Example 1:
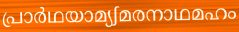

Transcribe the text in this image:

പ്രാർഥയാമ്യഽമരനാഥമഹം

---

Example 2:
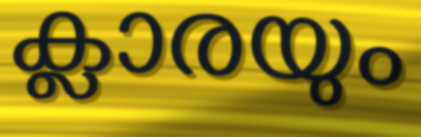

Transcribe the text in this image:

ക്ലാരയും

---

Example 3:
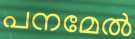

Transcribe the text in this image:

പനമേൽ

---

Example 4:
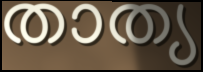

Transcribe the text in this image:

താത്യ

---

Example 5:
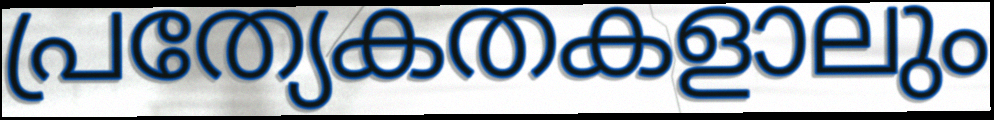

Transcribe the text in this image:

പ്രത്യേകതകളാലും